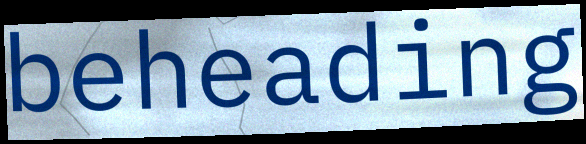
beheading